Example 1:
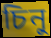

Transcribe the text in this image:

চিনু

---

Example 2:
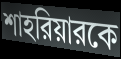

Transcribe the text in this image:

শাহরিয়ারকে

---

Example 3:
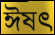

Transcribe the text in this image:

ঈষত্‍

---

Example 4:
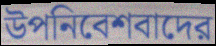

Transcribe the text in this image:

উপনিবেশবাদের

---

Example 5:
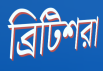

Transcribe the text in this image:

ব্রিটিশরা